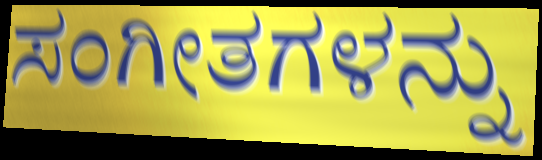
ಸಂಗೀತಗಳನ್ನು